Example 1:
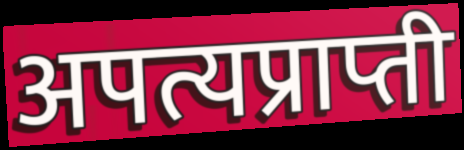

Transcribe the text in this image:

अपत्यप्राप्ती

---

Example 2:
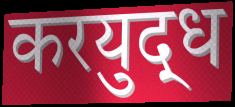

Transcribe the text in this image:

करयुद्ध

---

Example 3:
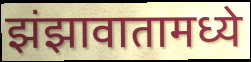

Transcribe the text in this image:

झंझावातामध्ये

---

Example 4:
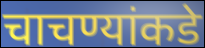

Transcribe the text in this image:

चाचण्यांकडे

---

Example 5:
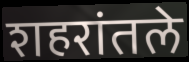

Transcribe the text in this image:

शहरांतले